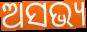
ଅସଭ୍ୟ